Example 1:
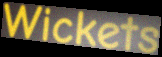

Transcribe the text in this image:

Wickets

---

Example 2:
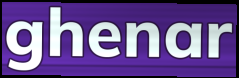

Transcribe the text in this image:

ghenar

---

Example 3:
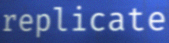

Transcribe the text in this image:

replicate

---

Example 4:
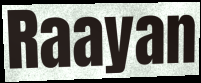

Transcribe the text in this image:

Raayan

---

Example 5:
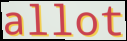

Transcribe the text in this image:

allot